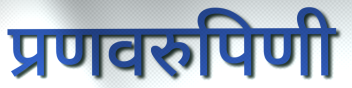
प्रणवरुपिणी